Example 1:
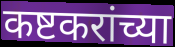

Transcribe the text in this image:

कष्टकरांच्या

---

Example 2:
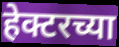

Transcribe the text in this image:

हेक्टरच्या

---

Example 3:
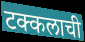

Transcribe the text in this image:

टक्कलाची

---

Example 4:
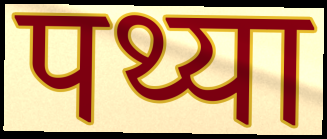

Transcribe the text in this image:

पथ्या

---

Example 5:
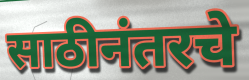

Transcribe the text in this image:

साठीनंतरचे